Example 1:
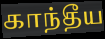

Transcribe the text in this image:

காந்தீய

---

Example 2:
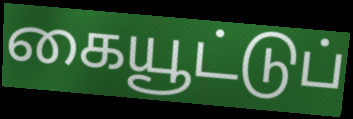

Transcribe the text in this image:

கையூட்டுப்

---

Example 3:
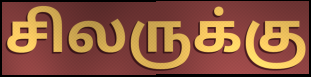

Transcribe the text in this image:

சிலருக்கு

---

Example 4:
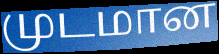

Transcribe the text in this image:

முடமான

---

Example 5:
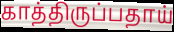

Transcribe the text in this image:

காத்திருப்பதாய்